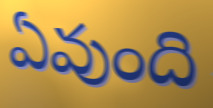
ఏవుంది